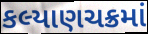
કલ્યાણચક્રમાં